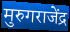
मुरुगराजेंद्र